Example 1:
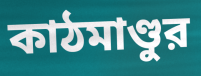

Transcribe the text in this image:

কাঠমাণ্ডুর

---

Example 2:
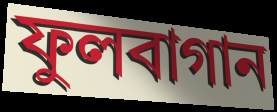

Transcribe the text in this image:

ফুলবাগান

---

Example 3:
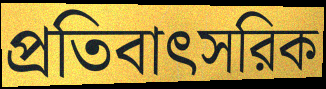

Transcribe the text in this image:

প্রতিবাৎসরিক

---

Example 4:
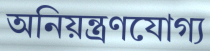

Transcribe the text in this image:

অনিয়ন্ত্রণযোগ্য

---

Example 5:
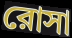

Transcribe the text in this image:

রোসা